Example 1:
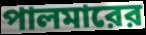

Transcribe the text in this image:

পালমারের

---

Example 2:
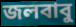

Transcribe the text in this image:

জলবাবু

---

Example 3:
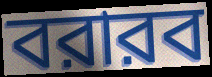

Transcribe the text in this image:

বরারব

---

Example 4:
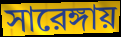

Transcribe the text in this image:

সারেঙ্গায়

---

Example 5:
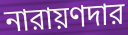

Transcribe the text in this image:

নারায়ণদার